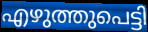
എഴുത്തുപെട്ടി